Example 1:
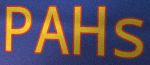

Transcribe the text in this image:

PAHs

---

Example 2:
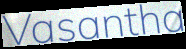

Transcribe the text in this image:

Vasantha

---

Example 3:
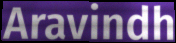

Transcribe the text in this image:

Aravindh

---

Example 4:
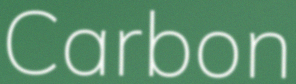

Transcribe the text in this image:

Carbon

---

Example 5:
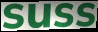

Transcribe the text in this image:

suss